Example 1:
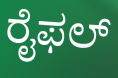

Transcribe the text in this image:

ರೈಫಲ್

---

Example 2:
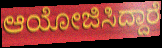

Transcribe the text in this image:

ಆಯೋಜಿಸಿದ್ದಾರೆ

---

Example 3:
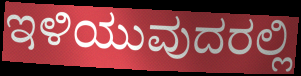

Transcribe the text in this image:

ಇಳಿಯುವುದರಲ್ಲಿ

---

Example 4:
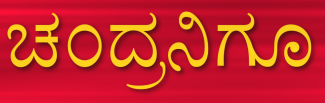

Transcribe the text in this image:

ಚಂದ್ರನಿಗೂ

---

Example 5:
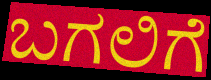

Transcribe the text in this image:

ಬಗಲಿಗೆ